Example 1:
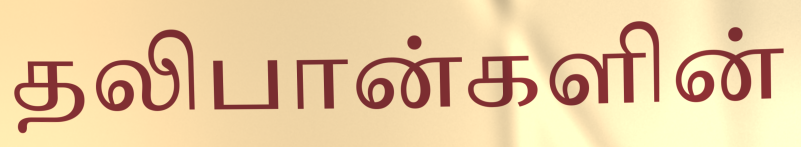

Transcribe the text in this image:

தலிபான்களின்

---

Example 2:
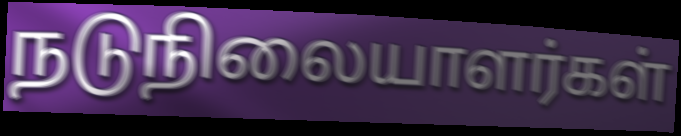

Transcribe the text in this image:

நடுநிலையாளர்கள்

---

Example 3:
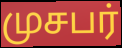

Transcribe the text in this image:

முசபர்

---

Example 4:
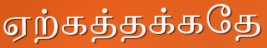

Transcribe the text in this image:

ஏற்கத்தக்கதே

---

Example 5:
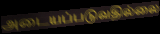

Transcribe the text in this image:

அடையப்படுவதில்லை